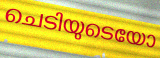
ചെടിയുടെയോ